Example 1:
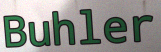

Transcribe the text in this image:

Buhler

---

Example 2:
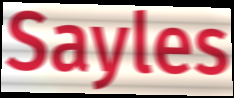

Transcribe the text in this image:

Sayles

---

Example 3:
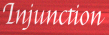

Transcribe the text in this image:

Injunction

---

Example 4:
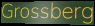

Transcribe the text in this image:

Grossberg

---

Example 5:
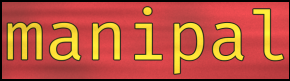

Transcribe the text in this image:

manipal